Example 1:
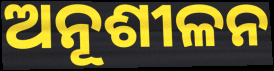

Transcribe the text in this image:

ଅନୂଶୀଳନ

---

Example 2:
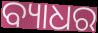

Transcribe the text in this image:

ବ୍ୟାଧର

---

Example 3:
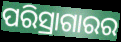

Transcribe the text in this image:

ପରିସ୍ରାଗାରର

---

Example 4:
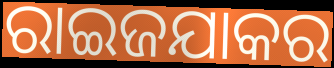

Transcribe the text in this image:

ରାଇଜଯାକର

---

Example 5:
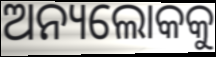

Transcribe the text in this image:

ଅନ୍ୟଲୋକକୁ